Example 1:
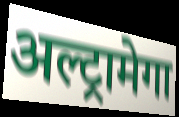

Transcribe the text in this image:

अल्ट्रामेगा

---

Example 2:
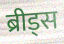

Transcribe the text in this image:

ब्रीड्स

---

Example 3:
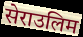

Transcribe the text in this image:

सेराउलिम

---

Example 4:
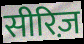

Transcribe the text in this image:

सीरिज़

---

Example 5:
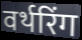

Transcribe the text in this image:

वर्थरिंग